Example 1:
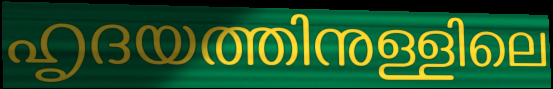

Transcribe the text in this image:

ഹൃദയത്തിനുള്ളിലെ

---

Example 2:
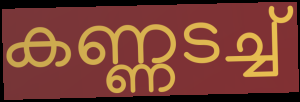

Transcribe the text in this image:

കണ്ണടച്ച്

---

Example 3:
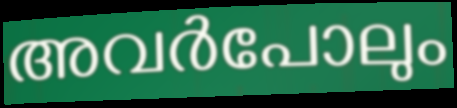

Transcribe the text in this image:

അവർപോലും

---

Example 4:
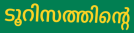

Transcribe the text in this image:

ടൂറിസത്തിന്റെ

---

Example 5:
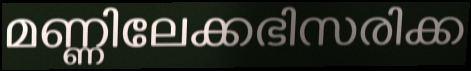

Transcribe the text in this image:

മണ്ണിലേക്കഭിസരിക്ക